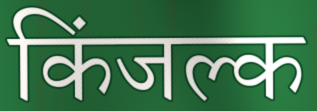
किंजल्क